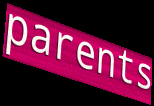
parents